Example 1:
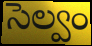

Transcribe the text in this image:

సెల్వం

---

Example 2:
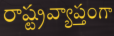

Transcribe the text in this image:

రాష్ట్రవ్యాప్తంగా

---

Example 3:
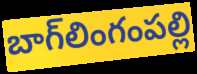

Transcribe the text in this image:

బాగ్‌లింగంపల్లి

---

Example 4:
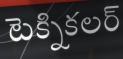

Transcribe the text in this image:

టెక్నికలర్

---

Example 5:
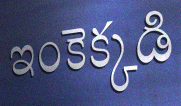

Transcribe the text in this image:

ఇంకెక్కడి